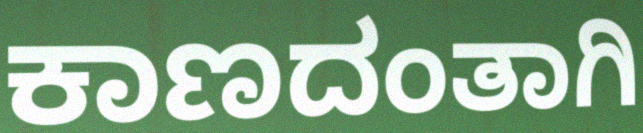
ಕಾಣದಂತಾಗಿ